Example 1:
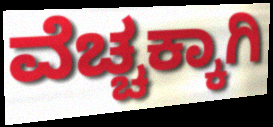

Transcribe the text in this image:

ವೆಚ್ಚಕ್ಕಾಗಿ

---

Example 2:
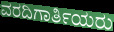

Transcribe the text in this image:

ವರದಿಗಾರ್ತಿಯರು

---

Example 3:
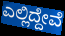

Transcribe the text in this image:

ಎಲ್ಲಿದ್ದೇವೆ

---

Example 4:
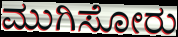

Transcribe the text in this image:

ಮುಗಿಸೋರು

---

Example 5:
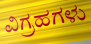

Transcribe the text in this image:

ವಿಗ್ರಹಗಳು